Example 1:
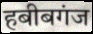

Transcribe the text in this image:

हबीबगंज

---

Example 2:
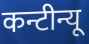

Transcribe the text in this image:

कन्टीन्यू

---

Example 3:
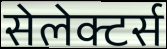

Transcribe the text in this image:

सेलेक्टर्स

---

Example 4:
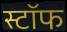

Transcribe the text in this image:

स्‍टॉफ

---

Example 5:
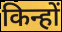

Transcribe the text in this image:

किन्हों